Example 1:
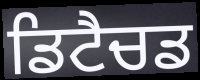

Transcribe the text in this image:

ਡਿਟੈਚਡ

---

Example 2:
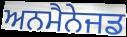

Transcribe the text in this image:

ਅਨਮੈਨੇਜਡ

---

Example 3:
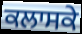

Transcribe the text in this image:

ਕਲਾਸਕੇ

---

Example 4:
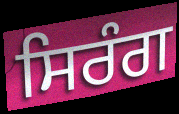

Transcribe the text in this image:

ਸਿਰੰਗ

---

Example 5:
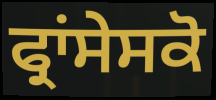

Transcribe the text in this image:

ਫ੍ਰਾਂਸੇਸਕੋ